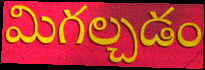
మిగల్చడం